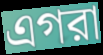
এগরা